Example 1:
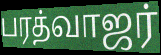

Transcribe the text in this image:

பரத்வாஜர்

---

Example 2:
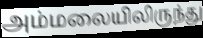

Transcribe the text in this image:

அம்மலையிலிருந்து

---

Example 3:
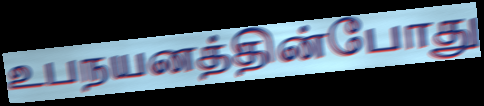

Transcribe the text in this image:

உபநயனத்தின்போது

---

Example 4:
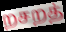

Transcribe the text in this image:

றசறத்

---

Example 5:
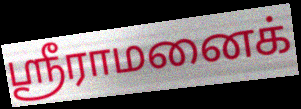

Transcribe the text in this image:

ஸ்ரீராமனைக்